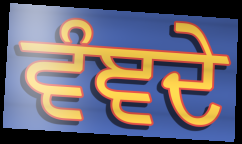
ਵੰਞਦੇ